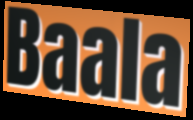
Baala